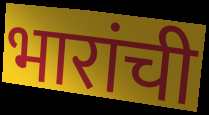
भारांची